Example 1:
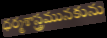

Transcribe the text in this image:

ధర్మశాస్త్రమునకును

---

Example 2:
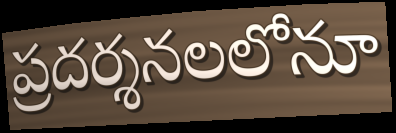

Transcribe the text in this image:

ప్రదర్శనలలోనూ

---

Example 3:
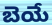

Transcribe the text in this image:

బెయే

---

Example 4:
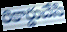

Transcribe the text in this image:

రికార్డుచేసి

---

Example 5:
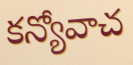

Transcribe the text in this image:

కన్యోవాచ